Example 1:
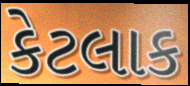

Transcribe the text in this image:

કેટલાક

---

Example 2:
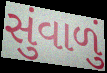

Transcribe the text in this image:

સુંવાળું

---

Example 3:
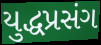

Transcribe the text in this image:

યુદ્ધપ્રસંગ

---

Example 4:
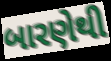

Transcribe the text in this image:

બારણેથી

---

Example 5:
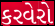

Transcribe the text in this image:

કરવેરો